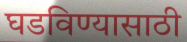
घडविण्यासाठी